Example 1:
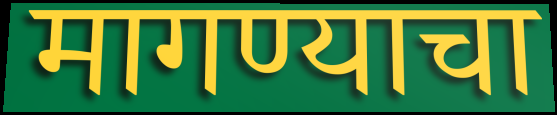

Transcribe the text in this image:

मागण्याचा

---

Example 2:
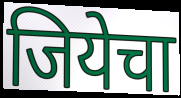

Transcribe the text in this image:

जियेचा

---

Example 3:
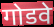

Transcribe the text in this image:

गोडवे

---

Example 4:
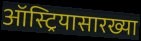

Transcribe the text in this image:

ऑस्ट्रियासारख्या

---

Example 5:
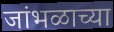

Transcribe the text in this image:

जांभळाच्या